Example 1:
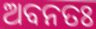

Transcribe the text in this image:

ଅବନତଃ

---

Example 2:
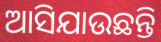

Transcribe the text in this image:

ଆସିଯାଉଛନ୍ତି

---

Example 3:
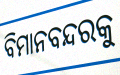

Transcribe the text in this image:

ବିମାନବନ୍ଦରକୁ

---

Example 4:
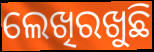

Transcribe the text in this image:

ଲେଖିରଖୁଛି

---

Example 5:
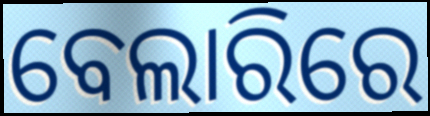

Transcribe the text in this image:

ବେଲାରିରେ